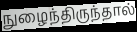
நுழைந்திருந்தால்